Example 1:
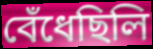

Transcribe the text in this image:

বেঁধেছিলি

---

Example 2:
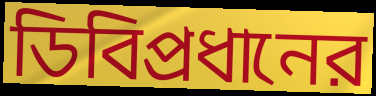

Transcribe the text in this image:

ডিবিপ্রধানের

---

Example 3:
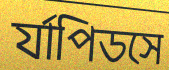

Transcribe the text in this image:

র্যাপিডসে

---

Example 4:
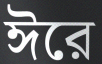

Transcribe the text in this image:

ঈরে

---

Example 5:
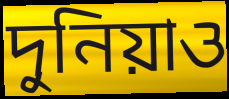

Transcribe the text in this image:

দুনিয়াও